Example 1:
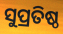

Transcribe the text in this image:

ସୁପ୍ରତିଷ୍ଠ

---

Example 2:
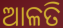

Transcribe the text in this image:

ଆଳତି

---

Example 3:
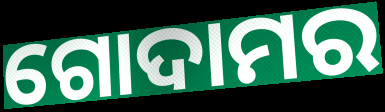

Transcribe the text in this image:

ଗୋଦାମର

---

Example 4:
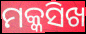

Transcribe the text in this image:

ମକ୍କସିଖ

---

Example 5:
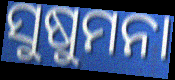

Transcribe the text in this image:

ସୁଷୁମନା